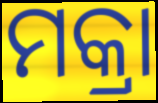
ମକ୍ରା